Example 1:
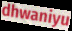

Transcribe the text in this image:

dhwaniyu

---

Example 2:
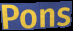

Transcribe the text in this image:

Pons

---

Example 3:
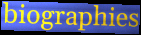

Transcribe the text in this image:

biographies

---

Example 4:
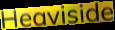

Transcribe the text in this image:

Heaviside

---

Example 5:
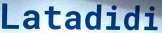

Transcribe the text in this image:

Latadidi